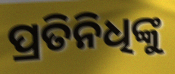
ପ୍ରତିନିଧିଙ୍କୁ